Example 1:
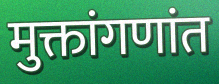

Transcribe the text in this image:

मुक्तांगणांत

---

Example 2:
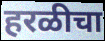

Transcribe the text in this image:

हरळीचा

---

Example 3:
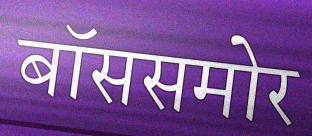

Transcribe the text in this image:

बॉससमोर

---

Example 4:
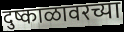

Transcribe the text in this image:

दुष्काळावरच्या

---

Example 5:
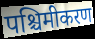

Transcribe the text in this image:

पश्चिमीकरण